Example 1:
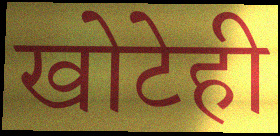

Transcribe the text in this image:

खोटेही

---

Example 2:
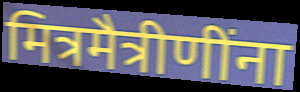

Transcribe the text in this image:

मित्रमैत्रीणींना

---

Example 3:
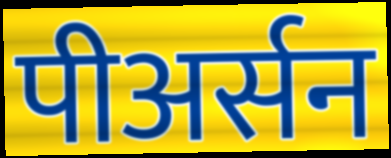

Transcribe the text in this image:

पीअर्सन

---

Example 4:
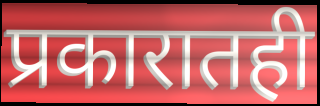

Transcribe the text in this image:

प्रकारातही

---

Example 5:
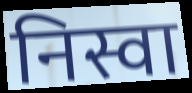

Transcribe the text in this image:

निस्वा